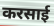
करसाई